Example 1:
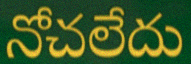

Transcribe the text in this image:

నోచలేదు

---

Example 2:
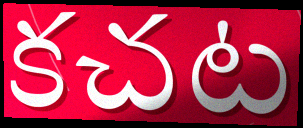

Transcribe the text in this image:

కచట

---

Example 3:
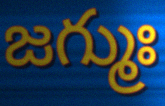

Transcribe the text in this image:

జగ్ముః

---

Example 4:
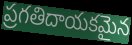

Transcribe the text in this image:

ప్రగతిదాయకమైన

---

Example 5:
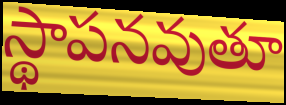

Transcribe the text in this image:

స్థాపనవుతూ